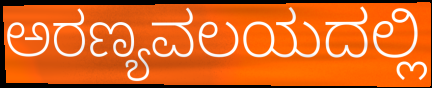
ಅರಣ್ಯವಲಯದಲ್ಲಿ